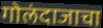
गोलंदाजाचा